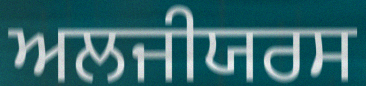
ਅਲਜੀਯਰਸ